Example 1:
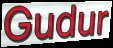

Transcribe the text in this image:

Gudur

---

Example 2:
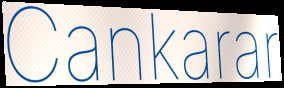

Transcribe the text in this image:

Cankarar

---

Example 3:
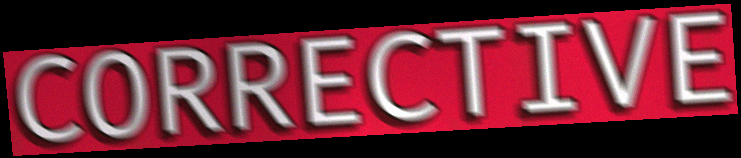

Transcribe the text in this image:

CORRECTIVE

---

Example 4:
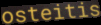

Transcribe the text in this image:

osteitis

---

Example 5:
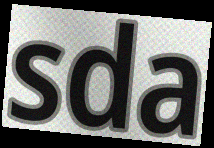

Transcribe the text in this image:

sda